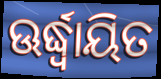
ଊର୍ଦ୍ଧ୍ୱାୟିତ